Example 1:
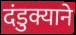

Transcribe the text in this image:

दंडुक्याने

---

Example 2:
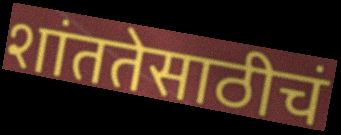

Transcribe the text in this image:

शांततेसाठीचं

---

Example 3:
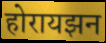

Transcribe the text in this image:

होरायझन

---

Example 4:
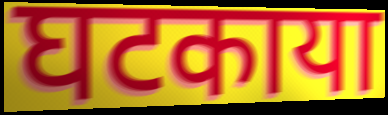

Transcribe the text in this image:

घटकाया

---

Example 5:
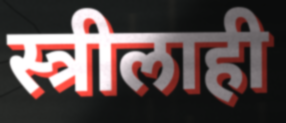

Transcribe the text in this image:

स्त्रीलाही